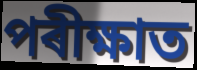
পৰীক্ষাত